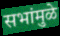
सभांमुळे